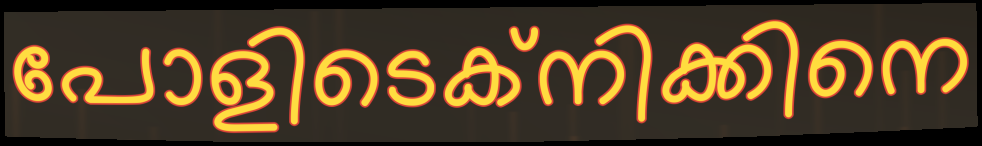
പോളിടെക്നിക്കിനെ